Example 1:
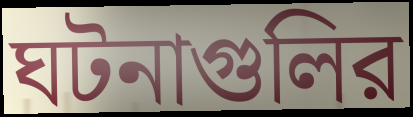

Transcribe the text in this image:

ঘটনাগুলির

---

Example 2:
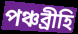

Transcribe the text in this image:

পঞ্চব্রীহি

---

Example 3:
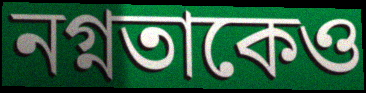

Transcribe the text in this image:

নগ্নতাকেও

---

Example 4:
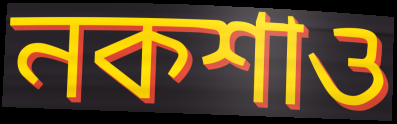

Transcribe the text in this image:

নকশাও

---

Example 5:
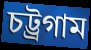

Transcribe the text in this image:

চট্ট্রগাম